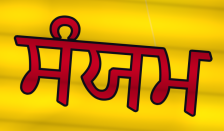
ਸੰਯਮ